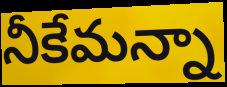
నీకేమన్నా